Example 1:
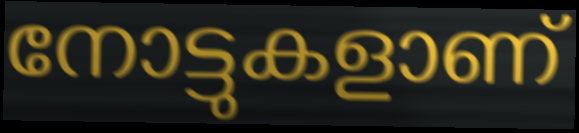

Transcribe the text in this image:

നോട്ടുകളാണ്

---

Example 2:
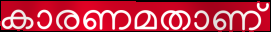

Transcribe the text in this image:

കാരണമതാണ്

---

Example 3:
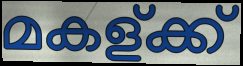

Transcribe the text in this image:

മകള്ക്ക്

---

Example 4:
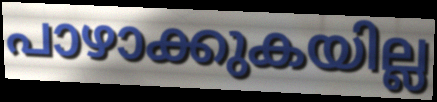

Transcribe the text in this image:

പാഴാക്കുകയില്ല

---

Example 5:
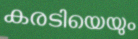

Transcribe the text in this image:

കരടിയെയും